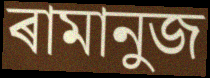
ৰামানুজ